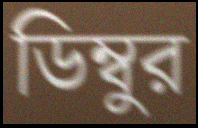
ডিম্বুর